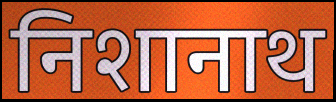
निशानाथ